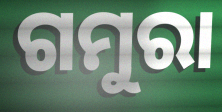
ଗମୁରା